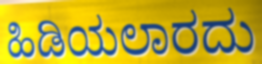
ಹಿಡಿಯಲಾರದು